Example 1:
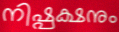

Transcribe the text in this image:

നിഷ്പക്ഷനും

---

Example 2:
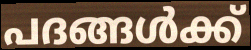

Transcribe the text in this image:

പദങ്ങൾക്ക്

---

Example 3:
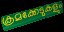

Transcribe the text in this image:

ക്രമക്കേടുകളും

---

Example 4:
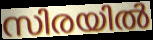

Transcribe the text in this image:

സിരയിൽ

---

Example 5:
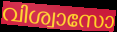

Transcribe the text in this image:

വിശ്വാസോ